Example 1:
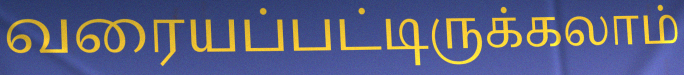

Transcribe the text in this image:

வரையப்பட்டிருக்கலாம்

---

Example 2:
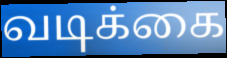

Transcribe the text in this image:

வடிக்கை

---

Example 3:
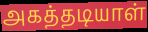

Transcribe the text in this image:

அகத்தடியாள்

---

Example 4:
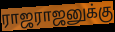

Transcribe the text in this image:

ராஜராஜனுக்கு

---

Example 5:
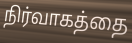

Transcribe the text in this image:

நிர்வாகத்தை